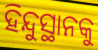
ହିନ୍ଦୁସ୍ଥାନକୁ